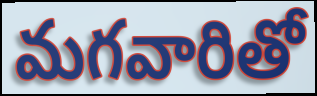
మగవారితో